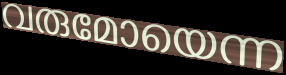
വരുമോയെന്ന